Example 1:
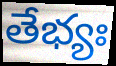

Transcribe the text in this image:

తేభ్యః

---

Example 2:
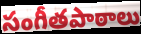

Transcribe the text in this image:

సంగీతపాఠాలు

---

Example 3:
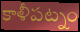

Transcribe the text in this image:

కాళీపట్నం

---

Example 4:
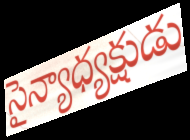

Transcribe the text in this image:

సైన్యాధ్యక్షుడు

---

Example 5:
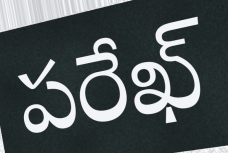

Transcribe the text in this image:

పరేఖ్